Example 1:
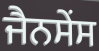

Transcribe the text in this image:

ਜੈਨਸੇਂਸ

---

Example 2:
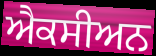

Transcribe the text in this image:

ਐਕਸੀਅਨ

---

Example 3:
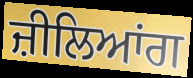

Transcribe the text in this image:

ਜ਼ੀਲਿਆਂਗ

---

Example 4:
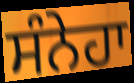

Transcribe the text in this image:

ਸੰਨੇਹਾ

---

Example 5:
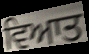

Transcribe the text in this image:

ਵਿਆਤ